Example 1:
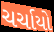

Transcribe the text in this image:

ચર્ચાયો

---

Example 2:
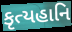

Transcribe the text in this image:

કૃત્યહાનિ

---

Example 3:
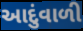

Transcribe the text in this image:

આદુંવાળી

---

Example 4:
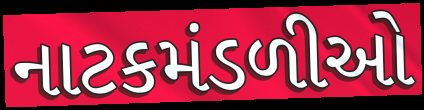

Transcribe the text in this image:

નાટકમંડળીઓ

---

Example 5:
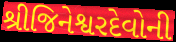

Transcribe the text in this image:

શ્રીજિનેશ્વરદેવોની